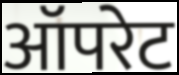
ऑपरेट